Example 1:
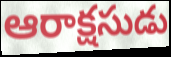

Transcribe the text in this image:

ఆరాక్షసుడు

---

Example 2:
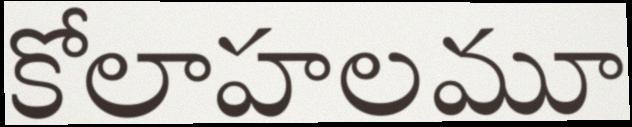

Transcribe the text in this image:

కోలాహలమూ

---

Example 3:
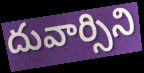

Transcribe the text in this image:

దువార్సిని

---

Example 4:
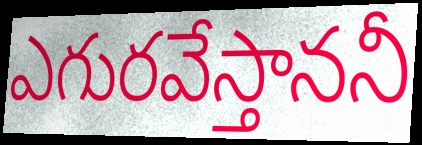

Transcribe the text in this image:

ఎగురవేస్తాననీ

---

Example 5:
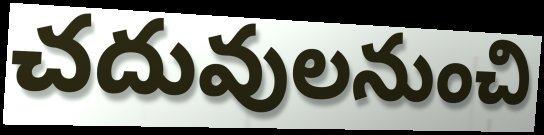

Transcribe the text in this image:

చదువులనుంచి